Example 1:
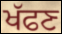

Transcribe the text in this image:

ਖੱਫਣ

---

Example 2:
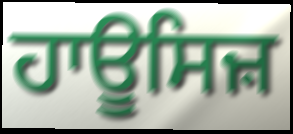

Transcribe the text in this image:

ਹਾਊਸਿਜ਼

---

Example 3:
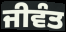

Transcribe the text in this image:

ਜੀਵੰਤ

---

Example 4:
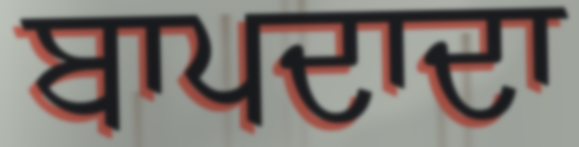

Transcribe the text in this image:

ਬਾਪਦਾਦਾ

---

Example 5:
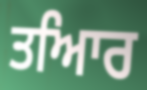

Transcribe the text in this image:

ਤਆਿਰ